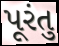
પૂરંતુ